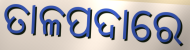
ତାଳପଦାରେ